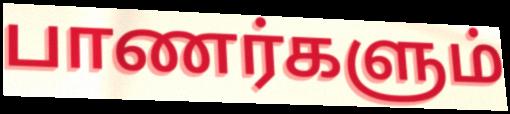
பாணர்களும்